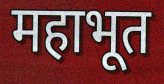
महाभूत